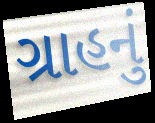
ગ્રાહનું